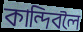
কান্দিবলৈ